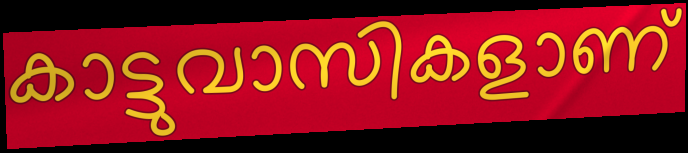
കാട്ടുവാസികളാണ്